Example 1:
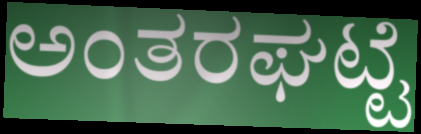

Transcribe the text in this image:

ಅಂತರಘಟ್ಟೆ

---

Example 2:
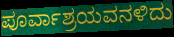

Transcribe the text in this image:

ಪೂರ್ವಾಶ್ರಯವನಳಿದು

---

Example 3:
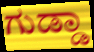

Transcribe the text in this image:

ಗುಡ್ಡಾ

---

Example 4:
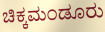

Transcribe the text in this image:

ಚಿಕ್ಕಮಂಡೂರು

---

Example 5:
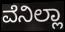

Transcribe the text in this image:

ವೆನಿಲ್ಲಾ